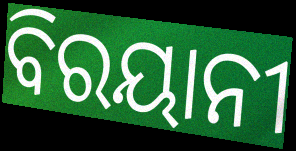
ବିରୟାନୀ